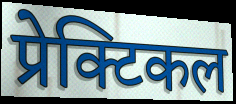
प्रेक्टिकल